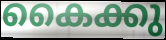
കൈക്കു